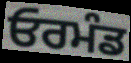
ਓਰਮੰਡ